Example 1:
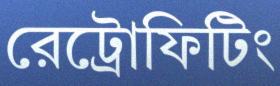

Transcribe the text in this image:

রেট্রোফিটিং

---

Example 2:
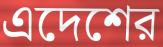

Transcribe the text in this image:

এদেশের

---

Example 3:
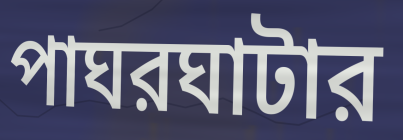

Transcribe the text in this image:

পাঘরঘাটার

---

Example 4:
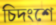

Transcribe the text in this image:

চিদংশে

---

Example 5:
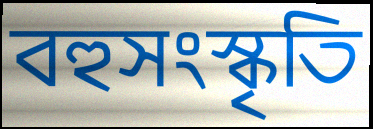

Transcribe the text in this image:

বহুসংস্কৃতি